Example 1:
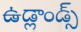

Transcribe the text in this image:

ఉడ్లాండ్స్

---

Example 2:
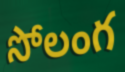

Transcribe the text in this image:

సోలంగ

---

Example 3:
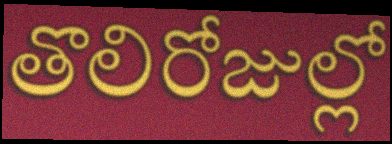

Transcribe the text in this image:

తొలిరోజుల్లో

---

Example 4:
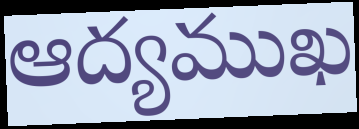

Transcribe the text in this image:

ఆద్యముఖ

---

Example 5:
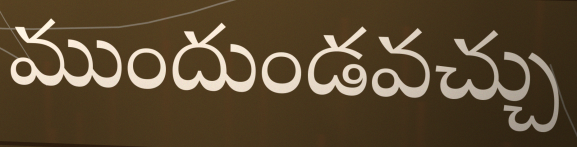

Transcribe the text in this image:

ముందుండవచ్చు